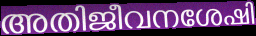
അതിജീവനശേഷി